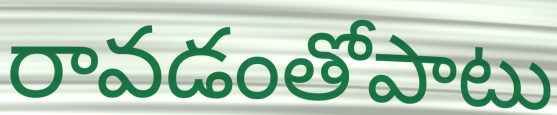
రావడంతోపాటు